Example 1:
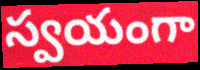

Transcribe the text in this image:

స్వయంగా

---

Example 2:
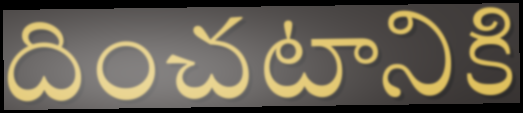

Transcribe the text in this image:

దించటానికి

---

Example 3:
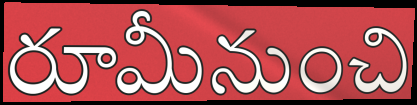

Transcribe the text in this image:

రూమీనుంచి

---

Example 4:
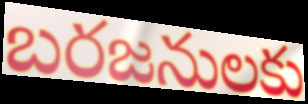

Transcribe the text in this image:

బరజనులకు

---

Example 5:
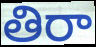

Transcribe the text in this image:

తిరా